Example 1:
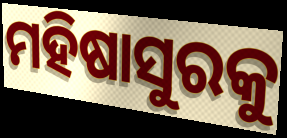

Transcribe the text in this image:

ମହିଷାସୁରକୁ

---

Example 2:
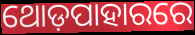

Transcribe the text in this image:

ଥୋଡ଼ପାହାରରେ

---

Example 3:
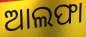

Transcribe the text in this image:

ଆଲଫା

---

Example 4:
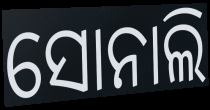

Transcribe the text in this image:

ସୋନାଲି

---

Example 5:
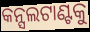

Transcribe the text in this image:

କନ୍ସଲଟାଣ୍ଟକୁ